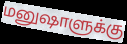
மனுஷாளுக்கு